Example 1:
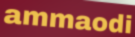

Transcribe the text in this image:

ammaodi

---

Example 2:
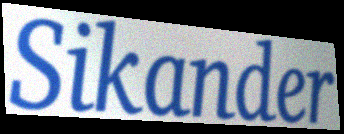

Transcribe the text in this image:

Sikander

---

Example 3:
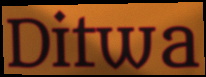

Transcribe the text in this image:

Ditwa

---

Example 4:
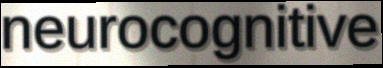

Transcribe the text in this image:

neurocognitive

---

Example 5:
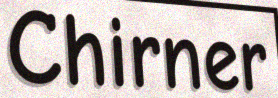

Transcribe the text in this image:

Chirner